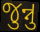
જુન્નુ